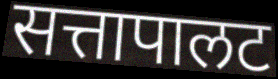
सत्तापालट